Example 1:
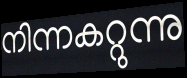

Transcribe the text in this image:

നിന്നകറ്റുന്നു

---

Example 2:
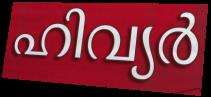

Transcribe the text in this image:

ഹിവ്യർ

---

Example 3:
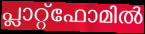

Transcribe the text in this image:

പ്ലാറ്റ്ഫോമിൽ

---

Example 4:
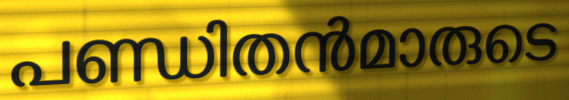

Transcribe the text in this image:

പണ്ഡിതൻമാരുടെ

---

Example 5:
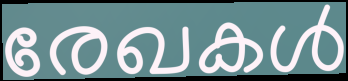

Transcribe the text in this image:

രേഖകൾ